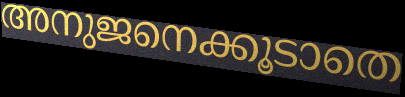
അനുജനെക്കൂടാതെ